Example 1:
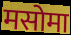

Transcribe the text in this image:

मसोमा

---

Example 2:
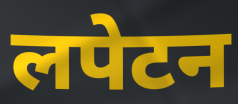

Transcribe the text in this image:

लपेटन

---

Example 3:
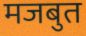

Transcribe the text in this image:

मजबुत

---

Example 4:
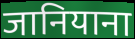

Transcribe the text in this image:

जानियाना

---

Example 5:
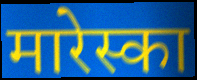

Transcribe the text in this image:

मारेस्का